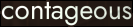
contageous